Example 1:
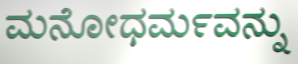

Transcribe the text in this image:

ಮನೋಧರ್ಮವನ್ನು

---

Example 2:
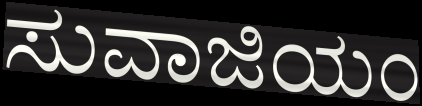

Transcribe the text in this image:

ಸುವಾಜಿಯಂ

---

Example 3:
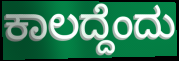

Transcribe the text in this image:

ಕಾಲದ್ದೆಂದು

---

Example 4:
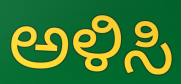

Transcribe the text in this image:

ಅಳಿಸಿ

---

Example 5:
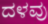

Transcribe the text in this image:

ದಳವು